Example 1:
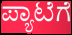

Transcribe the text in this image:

ಪ್ಯಾಟೆಗೆ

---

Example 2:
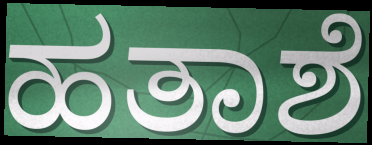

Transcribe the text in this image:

ಹತಾಶೆ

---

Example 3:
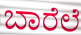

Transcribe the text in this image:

ಬಾರೆಲೆ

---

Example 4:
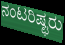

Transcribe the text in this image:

ನಂಟರಿಷ್ಟರು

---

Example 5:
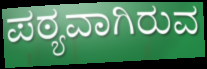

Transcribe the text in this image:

ಪಠ್ಯವಾಗಿರುವ